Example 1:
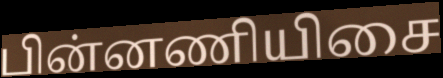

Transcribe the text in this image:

பின்னணியிசை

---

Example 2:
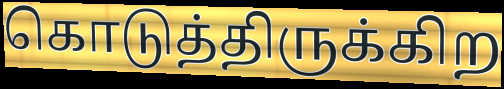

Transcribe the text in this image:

கொடுத்திருக்கிற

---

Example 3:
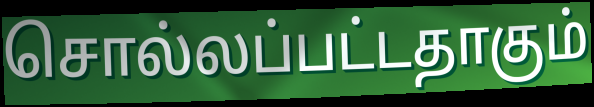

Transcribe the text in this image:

சொல்லப்பட்டதாகும்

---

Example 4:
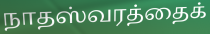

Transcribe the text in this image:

நாதஸ்வரத்தைக்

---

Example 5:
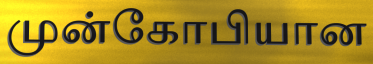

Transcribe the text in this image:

முன்கோபியான